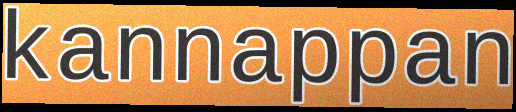
kannappan